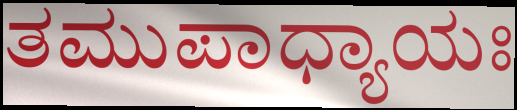
ತಮುಪಾಧ್ಯಾಯಃ